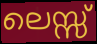
ലെസ്സ്